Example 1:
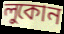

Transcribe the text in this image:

লুকোন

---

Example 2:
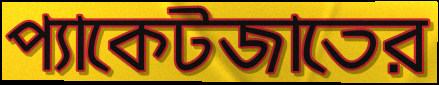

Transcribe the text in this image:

প্যাকেটজাতের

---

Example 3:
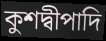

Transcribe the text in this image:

কুশদ্বীপাদি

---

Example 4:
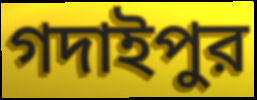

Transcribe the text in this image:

গদাইপুর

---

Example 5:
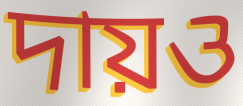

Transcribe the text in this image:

দায়ও